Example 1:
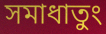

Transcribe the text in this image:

সমাধাতুং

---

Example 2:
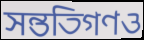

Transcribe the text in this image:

সন্ততিগণও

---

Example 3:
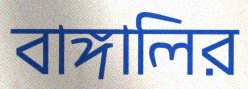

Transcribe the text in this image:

বাঙ্গালির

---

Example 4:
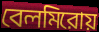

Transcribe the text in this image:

বেলমিরোয়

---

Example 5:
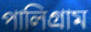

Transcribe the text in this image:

পালিগ্রাম